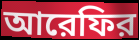
আরেফির